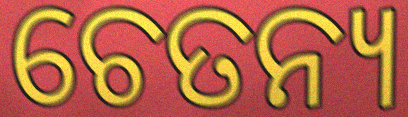
ଚେତନ୍ୟ